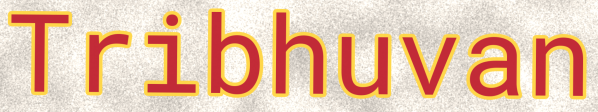
Tribhuvan